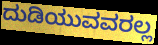
ದುಡಿಯುವವರಲ್ಲ